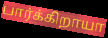
பார்க்கிறாயா